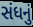
સંધનું